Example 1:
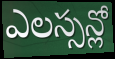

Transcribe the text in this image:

ఎలస్సన్లో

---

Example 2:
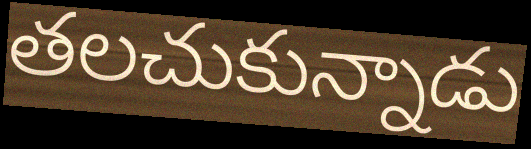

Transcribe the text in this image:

తలచుకున్నాడు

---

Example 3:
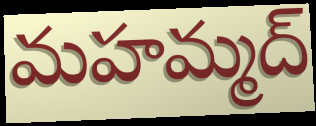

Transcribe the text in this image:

మహమ్మద్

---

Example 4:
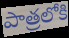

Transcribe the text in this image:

పాత్రలోకి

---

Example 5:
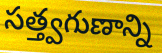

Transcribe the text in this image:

సత్త్వగుణాన్ని